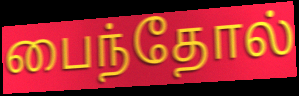
பைந்தோல்